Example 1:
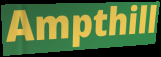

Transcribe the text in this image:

Ampthill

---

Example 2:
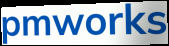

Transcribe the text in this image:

pmworks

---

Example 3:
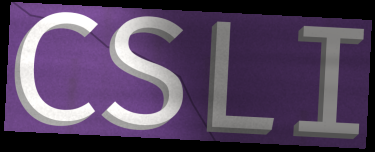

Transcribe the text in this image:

CSLI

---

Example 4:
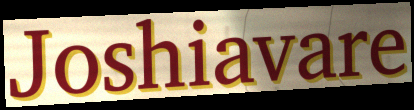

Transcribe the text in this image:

Joshiavare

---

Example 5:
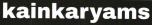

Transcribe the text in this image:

kainkaryams